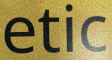
etic